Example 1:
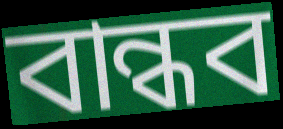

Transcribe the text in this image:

বান্ধব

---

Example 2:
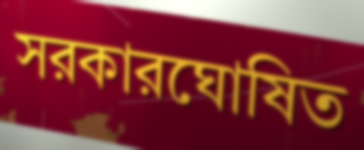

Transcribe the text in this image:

সরকারঘোষিত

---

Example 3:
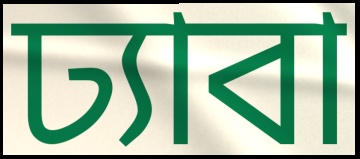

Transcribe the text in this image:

ঢ্যাবা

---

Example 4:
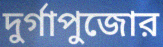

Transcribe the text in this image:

দুর্গাপুজোর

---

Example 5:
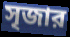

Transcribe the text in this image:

সৃজার